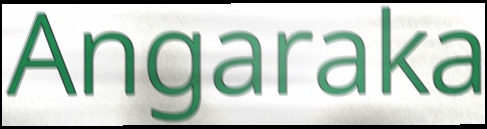
Angaraka